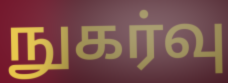
நுகர்வு